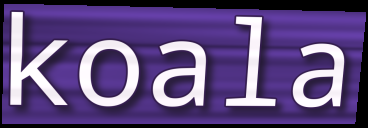
koala